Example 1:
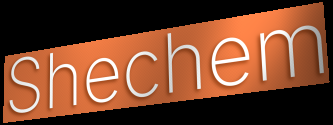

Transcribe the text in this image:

Shechem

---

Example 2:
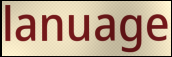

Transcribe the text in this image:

lanuage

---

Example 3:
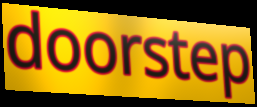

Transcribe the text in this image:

doorstep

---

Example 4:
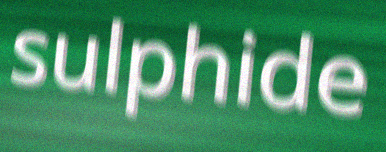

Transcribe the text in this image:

sulphide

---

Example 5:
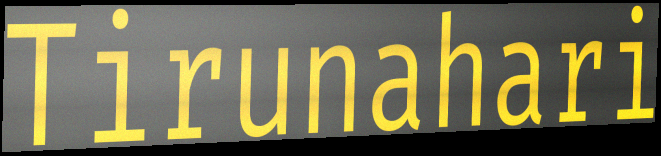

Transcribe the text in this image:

Tirunahari